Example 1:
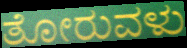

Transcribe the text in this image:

ತೋರುವಳು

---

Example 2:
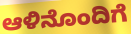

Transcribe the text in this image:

ಆಳಿನೊಂದಿಗೆ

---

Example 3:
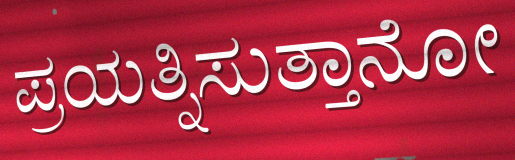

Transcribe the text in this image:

ಪ್ರಯತ್ನಿಸುತ್ತಾನೋ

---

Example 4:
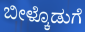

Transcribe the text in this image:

ಬೀಳ್ಕೊಡುಗೆ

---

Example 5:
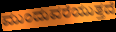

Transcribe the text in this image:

ಮುಂದುವರೆಯುತ್ತದೆ